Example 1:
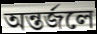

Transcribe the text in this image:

অন্তর্জলে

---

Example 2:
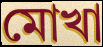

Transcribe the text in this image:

মোখা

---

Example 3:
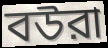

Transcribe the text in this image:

বউরা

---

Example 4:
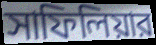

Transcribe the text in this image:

সাফিলিয়ার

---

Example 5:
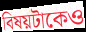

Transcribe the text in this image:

বিষয়টাকেও